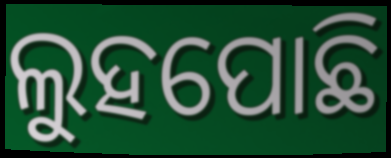
ଲୁହପୋଛି